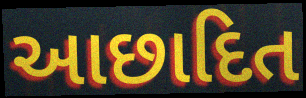
આછાદિત